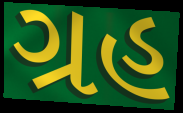
ગ્રહ